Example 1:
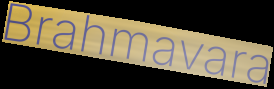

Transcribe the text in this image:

Brahmavara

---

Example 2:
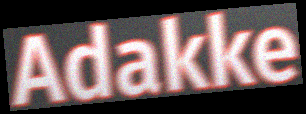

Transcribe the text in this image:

Adakke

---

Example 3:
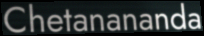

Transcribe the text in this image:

Chetanananda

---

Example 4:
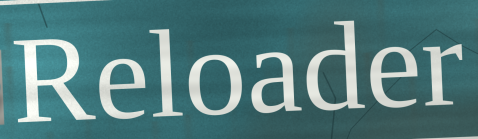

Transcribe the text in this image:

Reloader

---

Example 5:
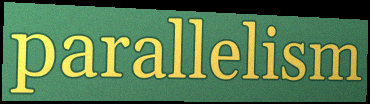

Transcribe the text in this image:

parallelism